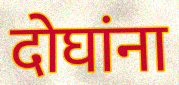
दोघांना